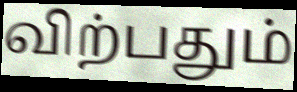
விற்பதும்